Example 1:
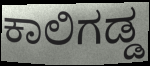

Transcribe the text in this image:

ಕಾಲಿಗಡ್ಡ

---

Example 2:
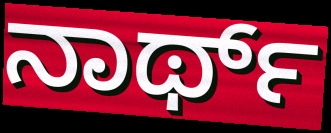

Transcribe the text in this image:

ನಾರ್ಥ್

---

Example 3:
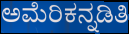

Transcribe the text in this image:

ಅಮೆರಿಕನ್ನಡಿತಿ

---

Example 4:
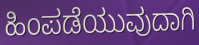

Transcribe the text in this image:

ಹಿಂಪಡೆಯುವುದಾಗಿ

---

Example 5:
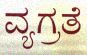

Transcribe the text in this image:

ವ್ಯಗ್ರತೆ